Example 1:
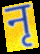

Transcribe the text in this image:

नृ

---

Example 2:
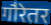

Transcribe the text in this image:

गौरेतर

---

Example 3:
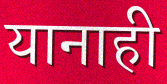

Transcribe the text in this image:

यानाही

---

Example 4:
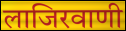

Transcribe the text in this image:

लाजिरवाणी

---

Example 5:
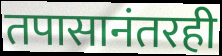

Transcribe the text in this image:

तपासानंतरही